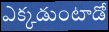
ఎక్కడుంటాడో